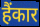
हैंकार